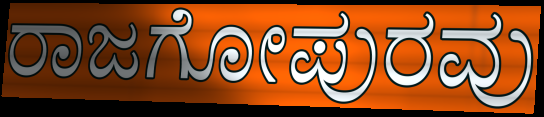
ರಾಜಗೋಪುರವು